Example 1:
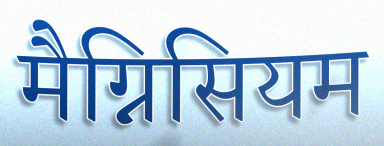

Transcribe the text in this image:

मैग्निसियम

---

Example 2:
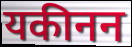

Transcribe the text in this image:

यकीनन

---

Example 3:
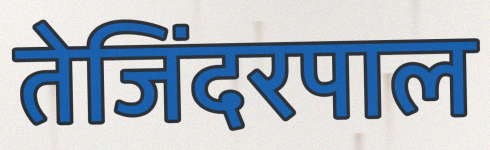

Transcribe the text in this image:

तेजिंदरपाल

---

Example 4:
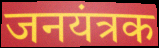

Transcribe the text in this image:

जनयंत्रक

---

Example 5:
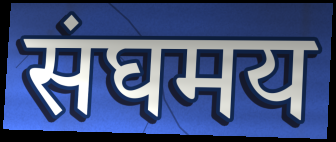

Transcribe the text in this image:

संघमय